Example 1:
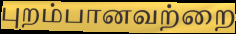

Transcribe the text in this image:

புறம்பானவற்றை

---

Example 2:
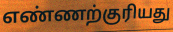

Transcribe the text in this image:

எண்ணற்குரியது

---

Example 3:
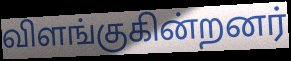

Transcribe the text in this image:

விளங்குகின்றனர்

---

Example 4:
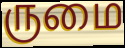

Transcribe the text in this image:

ருமை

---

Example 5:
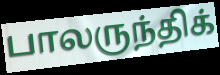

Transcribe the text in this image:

பாலருந்திக்